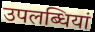
उपलब्धियां